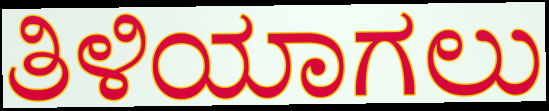
ತಿಳಿಯಾಗಲು